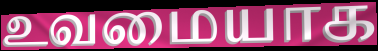
உவமையாக